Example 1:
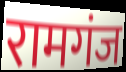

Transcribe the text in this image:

रामगंज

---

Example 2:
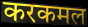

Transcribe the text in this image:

करकमल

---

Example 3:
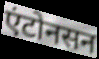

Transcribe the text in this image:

एंटोनसन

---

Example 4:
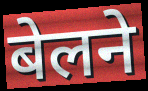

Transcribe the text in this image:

बेलने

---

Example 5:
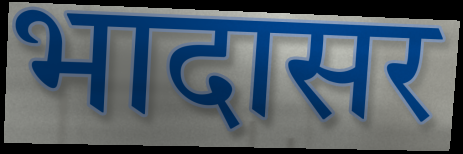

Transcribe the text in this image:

भादासर